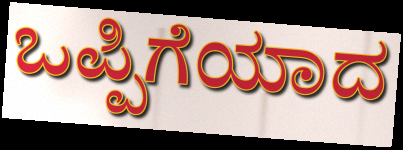
ಒಪ್ಪಿಗೆಯಾದ